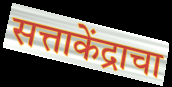
सत्ताकेंद्राचा